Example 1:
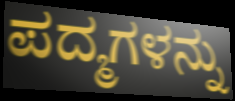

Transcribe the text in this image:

ಪದ್ಮಗಳನ್ನು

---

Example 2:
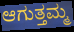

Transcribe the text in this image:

ಆಗುತ್ತಮ್ಮ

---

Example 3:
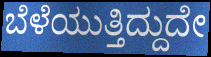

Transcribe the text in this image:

ಬೆಳೆಯುತ್ತಿದ್ದುದೇ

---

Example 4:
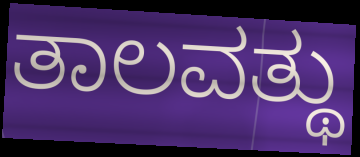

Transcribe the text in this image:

ತಾಲವತ್ಥು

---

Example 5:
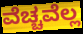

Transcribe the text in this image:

ವೆಚ್ಚವೆಲ್ಲ